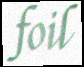
foil